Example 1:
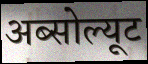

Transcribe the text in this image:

अब्सोल्यूट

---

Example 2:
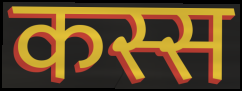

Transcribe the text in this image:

कस्स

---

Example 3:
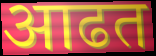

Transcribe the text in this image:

आढत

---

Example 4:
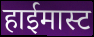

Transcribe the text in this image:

हाईमास्ट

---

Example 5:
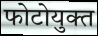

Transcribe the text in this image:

फोटोयुक्त